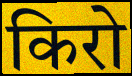
किरो